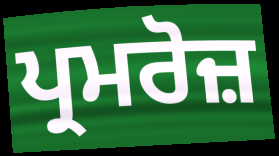
ਪ੍ਰਮਰੋਜ਼